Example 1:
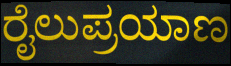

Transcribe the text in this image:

ರೈಲುಪ್ರಯಾಣ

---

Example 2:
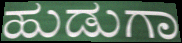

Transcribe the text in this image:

ಹುಡುಗಾ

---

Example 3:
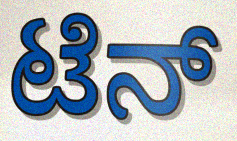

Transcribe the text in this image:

ಟೆನ್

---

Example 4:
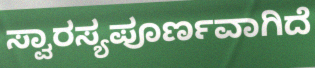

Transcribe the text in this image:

ಸ್ವಾರಸ್ಯಪೂರ್ಣವಾಗಿದೆ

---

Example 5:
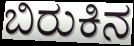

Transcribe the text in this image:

ಬಿರುಕಿನ